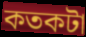
কতকটা